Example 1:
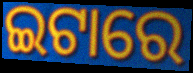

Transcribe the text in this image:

ଇଟାରେ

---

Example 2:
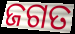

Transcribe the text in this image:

ଜଗତ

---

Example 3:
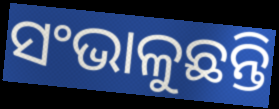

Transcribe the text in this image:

ସଂଭାଳୁଛନ୍ତି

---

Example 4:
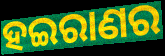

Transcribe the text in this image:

ହଇରାଣର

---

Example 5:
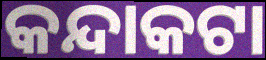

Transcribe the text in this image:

କନ୍ଦାକଟା